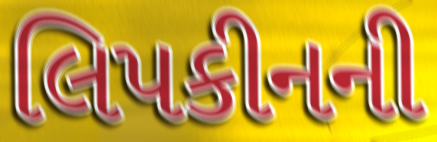
લિપકીનની